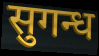
सुगन्ध